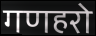
गणहरो